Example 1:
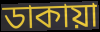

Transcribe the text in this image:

ডাকায়া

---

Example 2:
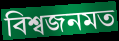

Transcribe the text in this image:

বিশ্বজনমত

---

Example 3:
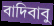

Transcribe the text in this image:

বাদিবাবু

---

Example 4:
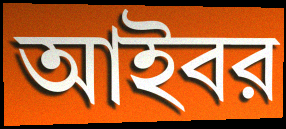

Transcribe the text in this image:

আইবর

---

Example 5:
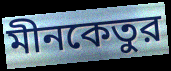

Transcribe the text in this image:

মীনকেতুর